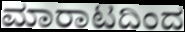
ಮಾರಾಟದಿಂದ